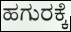
ಹಗುರಕ್ಕೆ